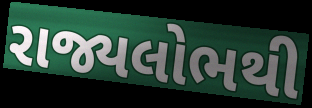
રાજ્યલોભથી